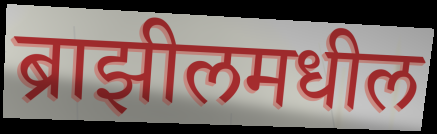
ब्राझीलमधील